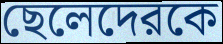
ছেলেদেরকে